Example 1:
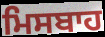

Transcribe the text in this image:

ਮਿਸਬਾਹ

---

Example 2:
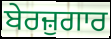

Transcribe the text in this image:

ਬੇਰਜ਼ੁਗਾਰ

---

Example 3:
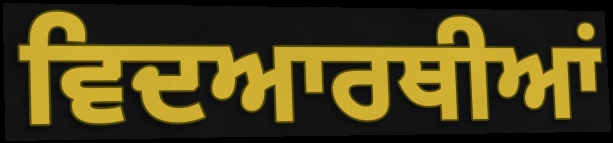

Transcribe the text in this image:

ਵਿਦਆਰਥੀਆਂ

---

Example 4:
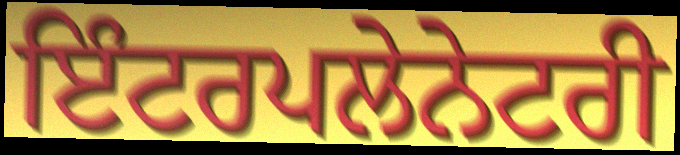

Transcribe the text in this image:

ਇੰਟਰਪਲੇਨੇਟਰੀ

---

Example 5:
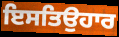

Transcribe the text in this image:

ਇਸਤਿਉਹਾਰ